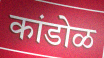
कांडोळ